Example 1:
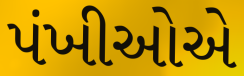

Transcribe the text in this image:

પંખીઓએ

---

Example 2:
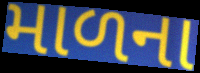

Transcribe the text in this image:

માળના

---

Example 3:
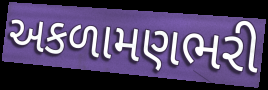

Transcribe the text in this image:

અકળામણભરી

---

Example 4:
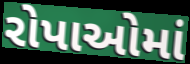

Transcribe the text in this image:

રોપાઓમાં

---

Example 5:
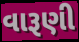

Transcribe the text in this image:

વારૂણી